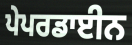
ਪੇਪਰਡਾਈਨ